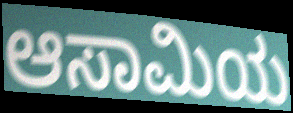
ಆಸಾಮಿಯ